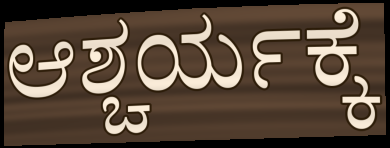
ಆಶ್ಚರ್ಯಕ್ಕೆ